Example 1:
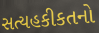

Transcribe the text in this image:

સત્યહકીકતનો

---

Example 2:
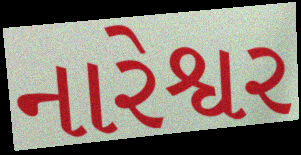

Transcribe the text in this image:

નારેશ્વર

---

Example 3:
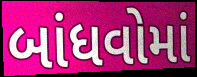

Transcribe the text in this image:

બાંધવોમાં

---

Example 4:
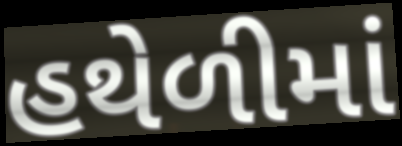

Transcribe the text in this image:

હથેળીમાં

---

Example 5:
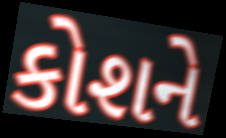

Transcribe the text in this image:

કોશને